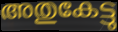
അതുകേട്ടു